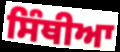
ਸਿੰਥੀਆ